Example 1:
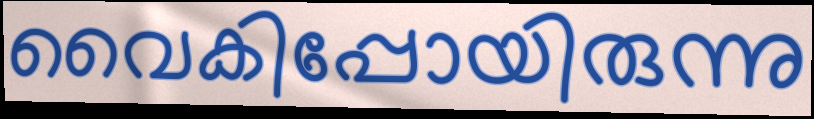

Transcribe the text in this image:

വൈകിപ്പോയിരുന്നു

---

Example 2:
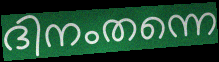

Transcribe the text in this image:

ദിനംതന്നെ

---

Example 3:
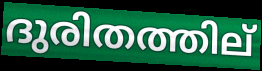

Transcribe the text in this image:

ദുരിതത്തില്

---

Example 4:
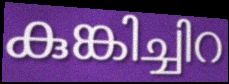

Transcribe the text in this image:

കുങ്കിച്ചിറ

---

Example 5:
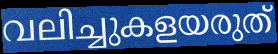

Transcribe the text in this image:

വലിച്ചുകളയരുത്